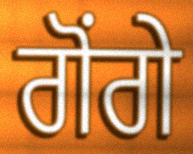
ਗੋਂਗੇ